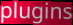
plugins